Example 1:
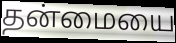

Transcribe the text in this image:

தன்மையை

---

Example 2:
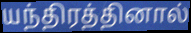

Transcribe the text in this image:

யந்திரத்தினால்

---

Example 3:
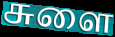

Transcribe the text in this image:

சுளை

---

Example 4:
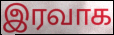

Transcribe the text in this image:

இரவாக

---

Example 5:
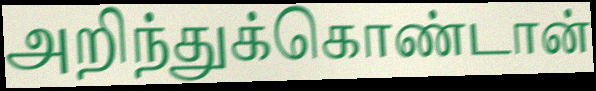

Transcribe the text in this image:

அறிந்துக்கொண்டான்